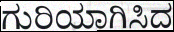
ಗುರಿಯಾಗಿಸಿದ